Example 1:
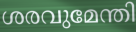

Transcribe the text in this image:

ശരവുമേന്തി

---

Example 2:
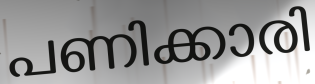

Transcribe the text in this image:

പണിക്കാരി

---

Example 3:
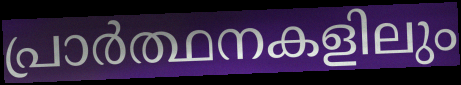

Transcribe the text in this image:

പ്രാർത്ഥനകളിലും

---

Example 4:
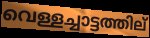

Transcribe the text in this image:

വെള്ളച്ചാട്ടത്തില്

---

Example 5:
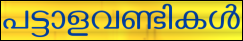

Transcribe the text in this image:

പട്ടാളവണ്ടികൾ